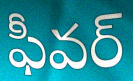
ఫీవర్